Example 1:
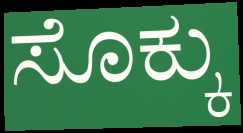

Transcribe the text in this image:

ಸೊಕ್ಕು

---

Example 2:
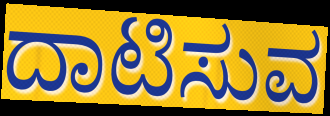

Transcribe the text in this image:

ದಾಟಿಸುವ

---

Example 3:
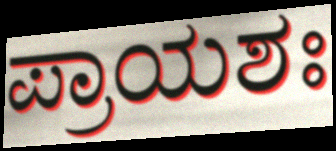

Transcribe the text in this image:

ಪ್ರಾಯಶಃ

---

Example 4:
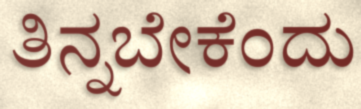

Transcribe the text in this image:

ತಿನ್ನಬೇಕೆಂದು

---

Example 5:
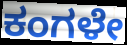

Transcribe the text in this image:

ಕಂಗಳೇ